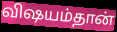
விஷயம்தான்